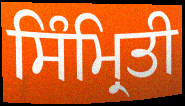
ਸਿੰਮ੍ਰਿਤੀ